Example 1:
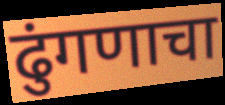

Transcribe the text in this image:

ढुंगणाचा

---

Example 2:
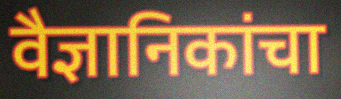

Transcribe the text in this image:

वैज्ञानिकांचा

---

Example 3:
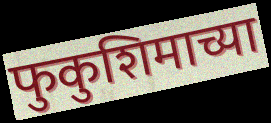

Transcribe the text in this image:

फुकुशिमाच्या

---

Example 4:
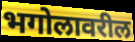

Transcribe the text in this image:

भगोलावरील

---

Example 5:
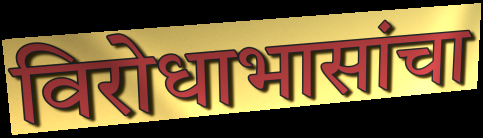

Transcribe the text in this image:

विरोधाभासांचा